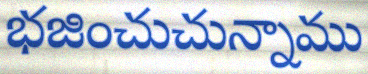
భజించుచున్నాము